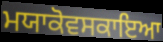
ਮਯਾਕੋਵਸਕਾਇਆ